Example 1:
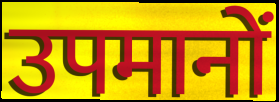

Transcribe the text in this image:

उपमानों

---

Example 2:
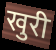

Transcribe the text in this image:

खुरी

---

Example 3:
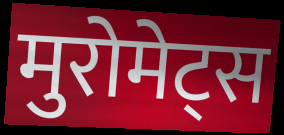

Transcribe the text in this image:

मुरोमेट्स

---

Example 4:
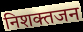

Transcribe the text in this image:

निशक्तजन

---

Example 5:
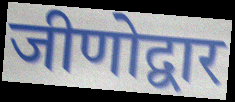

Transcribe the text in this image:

जीणोद्वार